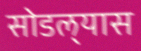
सोडल्यास